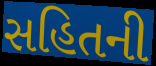
સહિતની